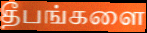
தீபங்களை